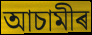
আচামীৰ